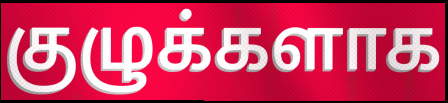
குழுக்களாக